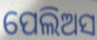
ପେଲିଅସ